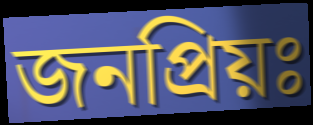
জনপ্রিয়ঃ